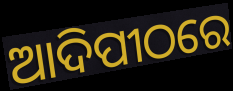
ଆଦିପୀଠରେ